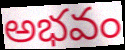
అభవం